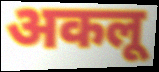
अकलू